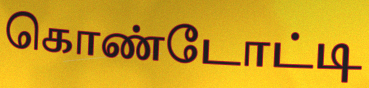
கொண்டோட்டி